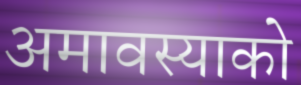
अमावस्याको